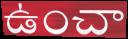
ఉంచా